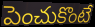
పెంచుకొంటే